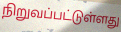
நிறுவப்பட்டுள்ளது